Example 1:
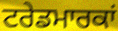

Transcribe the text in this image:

ਟਰੇਡਮਾਰਕਾਂ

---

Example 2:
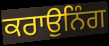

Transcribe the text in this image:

ਕਰਾਉਨਿੰਗ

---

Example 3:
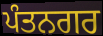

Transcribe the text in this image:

ਪੰਤਨਗਰ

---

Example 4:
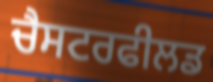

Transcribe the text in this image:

ਚੈਸਟਰਫੀਲਡ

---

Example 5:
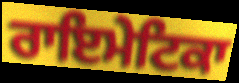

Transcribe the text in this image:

ਰਾਇਮੇਟਿਕਾ